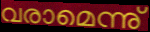
വരാമെന്നു്